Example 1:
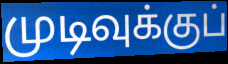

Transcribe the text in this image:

முடிவுக்குப்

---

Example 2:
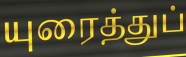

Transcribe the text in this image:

யுரைத்துப்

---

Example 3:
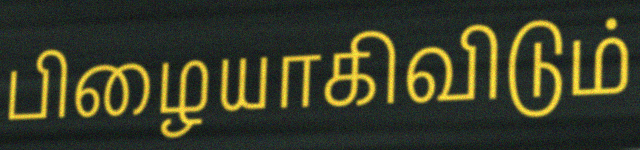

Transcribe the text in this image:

பிழையாகிவிடும்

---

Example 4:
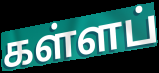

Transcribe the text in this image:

கள்ளப்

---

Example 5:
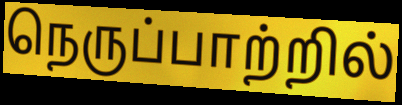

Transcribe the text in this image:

நெருப்பாற்றில்